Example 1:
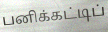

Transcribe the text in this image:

பனிக்கட்டிப்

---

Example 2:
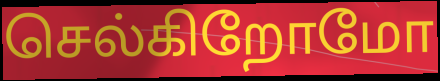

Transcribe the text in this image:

செல்கிறோமோ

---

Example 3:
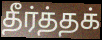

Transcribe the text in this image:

தீர்த்தக்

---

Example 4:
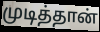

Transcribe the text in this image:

முடித்தான்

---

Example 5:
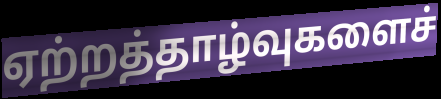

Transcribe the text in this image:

ஏற்றத்தாழ்வுகளைச்